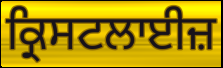
ਕ੍ਰਿਸਟਲਾਈਜ਼